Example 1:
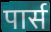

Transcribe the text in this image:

पार्स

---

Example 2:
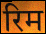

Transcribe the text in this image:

रिम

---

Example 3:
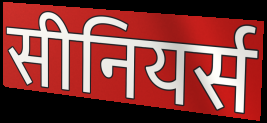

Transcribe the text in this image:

सीनियर्स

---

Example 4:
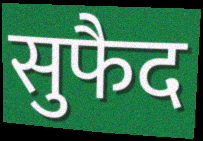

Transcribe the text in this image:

सुफैद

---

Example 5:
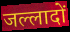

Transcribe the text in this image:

जल्लादों